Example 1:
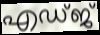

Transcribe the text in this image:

എഡ്ജ്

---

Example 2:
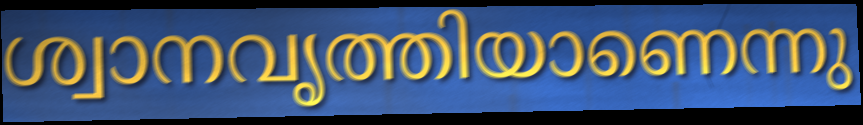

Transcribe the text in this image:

ശ്വാനവൃത്തിയാണെന്നു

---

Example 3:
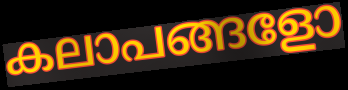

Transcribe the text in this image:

കലാപങ്ങളോ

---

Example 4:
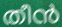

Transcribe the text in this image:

തീൻ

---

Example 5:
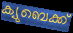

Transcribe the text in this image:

ക്യുബെക്ക്